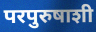
परपुरुषाशी